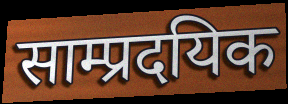
साम्प्रदयिक